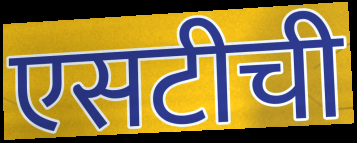
एसटीची